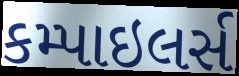
કમ્પાઇલર્સ